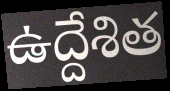
ఉద్దేశిత